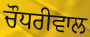
ਚੌਧਰੀਵਾਲ